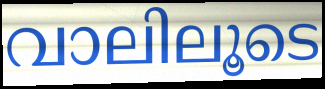
വാലിലൂടെ